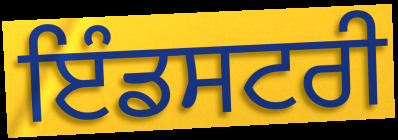
ਇੰਡਸਟਰੀ